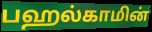
பஹல்காமின்